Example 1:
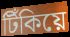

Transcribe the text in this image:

টিঁকিয়ে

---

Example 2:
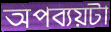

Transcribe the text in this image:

অপব্যয়টা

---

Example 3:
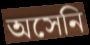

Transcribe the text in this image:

অসেনি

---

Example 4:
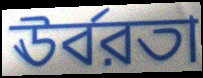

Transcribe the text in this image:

ঊর্বরতা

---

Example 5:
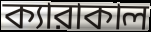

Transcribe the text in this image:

ক্যারাকাল